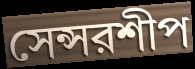
সেন্সরশীপ